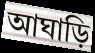
আঘাড়ি